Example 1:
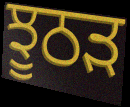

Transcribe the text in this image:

ਝੂਠੜ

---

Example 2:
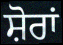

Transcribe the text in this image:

ਸ਼ੋਰਾਂ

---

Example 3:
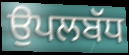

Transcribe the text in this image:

ਉਪਲਬੱਧ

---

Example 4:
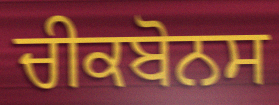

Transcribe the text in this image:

ਚੀਕਬੋਨਸ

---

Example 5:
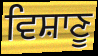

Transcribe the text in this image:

ਵਿਸ਼ਾਣੂ